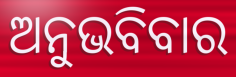
ଅନୁଭବିବାର